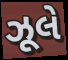
ઝૂલે